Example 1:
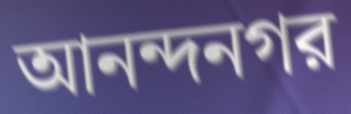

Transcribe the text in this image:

আনন্দনগর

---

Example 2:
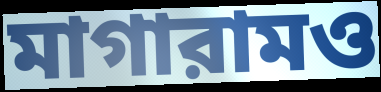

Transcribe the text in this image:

মাগারামও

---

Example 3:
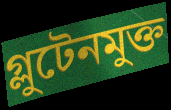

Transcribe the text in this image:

গ্লুটেনমুক্ত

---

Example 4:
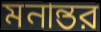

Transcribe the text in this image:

মনান্তর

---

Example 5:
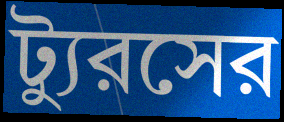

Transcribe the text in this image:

ট্যুরসের